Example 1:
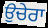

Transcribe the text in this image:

ਉਚੇਰਾ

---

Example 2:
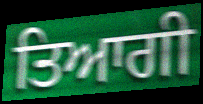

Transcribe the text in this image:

ਤਿਆਗੀ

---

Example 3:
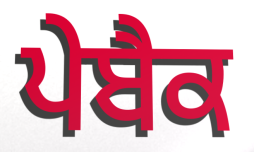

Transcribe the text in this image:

ਪੇਬੈਕ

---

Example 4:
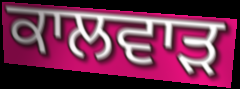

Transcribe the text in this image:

ਕਾਲਵਾੜ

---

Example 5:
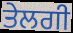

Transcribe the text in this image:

ਤੇਲਗੀ